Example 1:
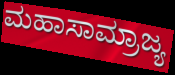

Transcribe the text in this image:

ಮಹಾಸಾಮ್ರಾಜ್ಯ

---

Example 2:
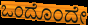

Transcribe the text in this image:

ಒಂದೊಂದೇ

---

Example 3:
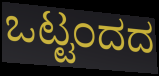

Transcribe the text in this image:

ಒಟ್ಟಂದದ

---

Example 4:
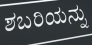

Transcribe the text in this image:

ಶಬರಿಯನ್ನು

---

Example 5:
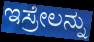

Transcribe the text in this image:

ಇಸ್ರೇಲನ್ನು